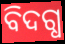
ବିଦଗ୍ଧ